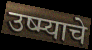
उष्म्याचे